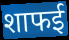
शाफई